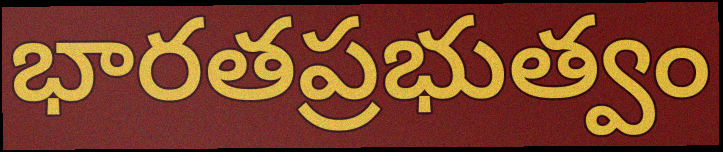
భారతప్రభుత్వం